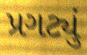
પ્રગટ્યું